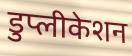
डुप्लीकेशन